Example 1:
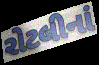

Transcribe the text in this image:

રોટલીનાં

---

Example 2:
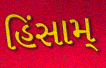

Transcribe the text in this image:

હિંસામ્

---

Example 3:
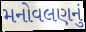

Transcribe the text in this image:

મનોવલણનું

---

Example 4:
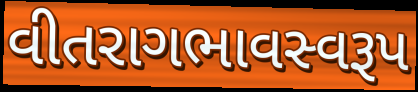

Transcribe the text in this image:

વીતરાગભાવસ્વરૂપ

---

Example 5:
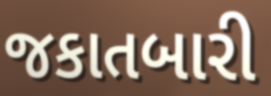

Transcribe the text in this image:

જકાતબારી